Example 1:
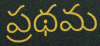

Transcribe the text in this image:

ప్రథమ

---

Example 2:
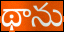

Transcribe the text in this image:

థాను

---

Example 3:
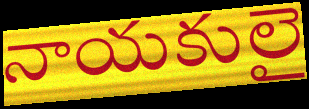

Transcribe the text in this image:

నాయకులై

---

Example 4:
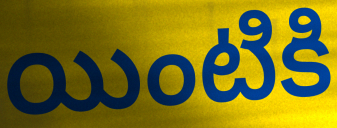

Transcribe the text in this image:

యింటికి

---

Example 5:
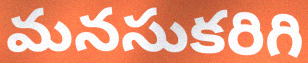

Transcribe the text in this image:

మనసుకరిగి